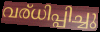
വര്ധിപ്പിച്ചു